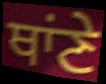
ਥਾਂਣੇ